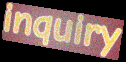
inquiry